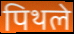
पिथले